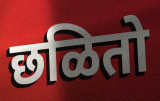
छळितो